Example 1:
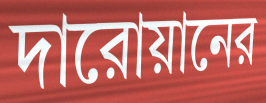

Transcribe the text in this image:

দারোয়ানের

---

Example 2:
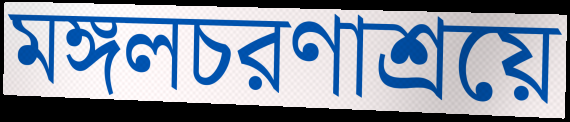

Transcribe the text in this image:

মঙ্গলচরণাশ্রয়ে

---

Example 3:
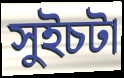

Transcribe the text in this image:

সুইচটা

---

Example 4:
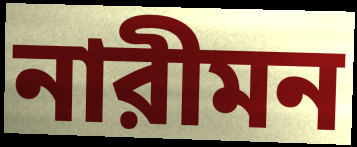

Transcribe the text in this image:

নারীমন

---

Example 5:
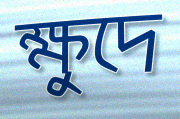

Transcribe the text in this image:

ক্ষুদে